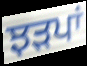
ਝੜਪਾਂ